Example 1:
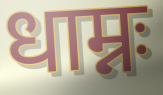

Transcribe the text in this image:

धाम्नः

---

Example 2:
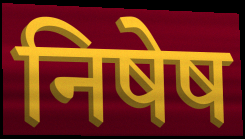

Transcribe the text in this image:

निषेष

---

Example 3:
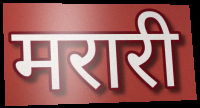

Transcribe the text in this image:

मरारी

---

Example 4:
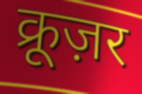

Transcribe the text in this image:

क्रूज़र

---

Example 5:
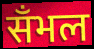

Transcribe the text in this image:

सँभल